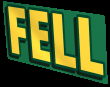
FELL